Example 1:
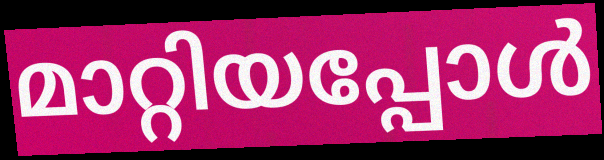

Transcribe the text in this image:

മാറ്റിയപ്പോൾ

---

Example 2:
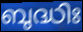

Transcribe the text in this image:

ബുദ്ധിഃ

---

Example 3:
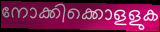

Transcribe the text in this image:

നോക്കിക്കൊളളുക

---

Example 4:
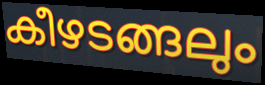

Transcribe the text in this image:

കീഴടങ്ങലും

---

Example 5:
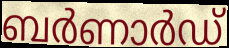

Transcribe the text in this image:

ബർണാർഡ്